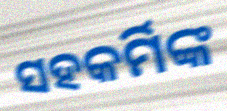
ସହକର୍ମିଙ୍କ